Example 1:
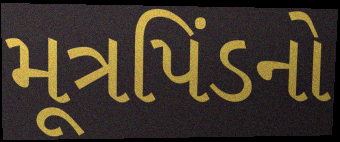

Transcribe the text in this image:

મૂત્રપિંડનો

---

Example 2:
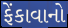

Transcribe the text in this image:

ફેંકાવાનો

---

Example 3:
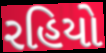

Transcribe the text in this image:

રહિયો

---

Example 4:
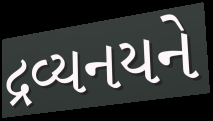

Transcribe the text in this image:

દ્રવ્યનયને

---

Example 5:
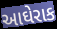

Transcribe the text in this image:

આઘેરાક